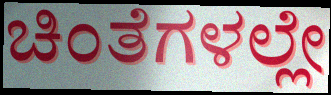
ಚಿಂತೆಗಳಲ್ಲೇ